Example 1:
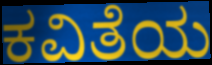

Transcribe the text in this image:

ಕವಿತೆಯ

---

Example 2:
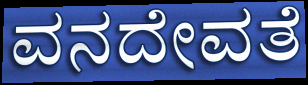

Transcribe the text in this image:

ವನದೇವತೆ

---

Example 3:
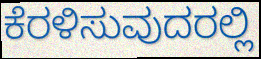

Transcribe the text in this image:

ಕೆರಳಿಸುವುದರಲ್ಲಿ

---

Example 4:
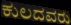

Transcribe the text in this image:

ಕುಲದವರು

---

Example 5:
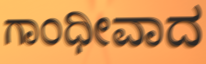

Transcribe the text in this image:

ಗಾಂಧೀವಾದ